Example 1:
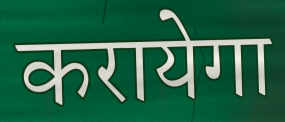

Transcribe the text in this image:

करायेगा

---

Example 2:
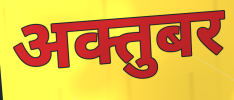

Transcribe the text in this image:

अक्तुबर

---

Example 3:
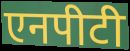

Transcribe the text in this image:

एनपीटी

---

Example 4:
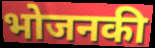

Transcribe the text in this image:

भोजनकी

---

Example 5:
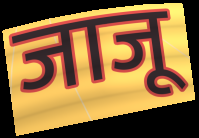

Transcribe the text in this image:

जाजू